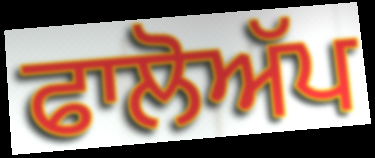
ਫਾਲੋਅੱਪ